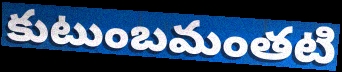
కుటుంబమంతటి